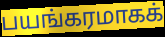
பயங்கரமாகக்